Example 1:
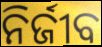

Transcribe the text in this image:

ନିର୍ଜୀବ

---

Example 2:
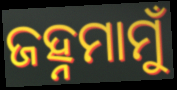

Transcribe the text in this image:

ଜହ୍ନମାମୁଁ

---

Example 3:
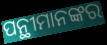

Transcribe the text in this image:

ପନ୍ଥୀମାନଙ୍କର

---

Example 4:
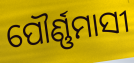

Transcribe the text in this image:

ପୌର୍ଣ୍ଣମାସୀ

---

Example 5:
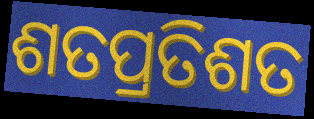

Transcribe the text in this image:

ଶତପ୍ରତିଶତ